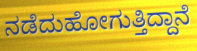
ನಡೆದುಹೋಗುತ್ತಿದ್ದಾನೆ